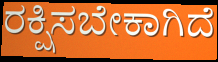
ರಕ್ಷಿಸಬೇಕಾಗಿದೆ